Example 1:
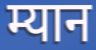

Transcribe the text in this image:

म्यान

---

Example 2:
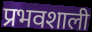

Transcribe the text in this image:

प्रभवशाली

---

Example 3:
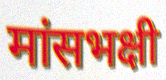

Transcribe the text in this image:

मांसभक्षी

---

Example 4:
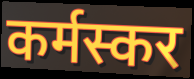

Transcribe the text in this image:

कर्मस्कर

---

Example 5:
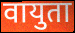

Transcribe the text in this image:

वायुता